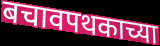
बचावपथकाच्या